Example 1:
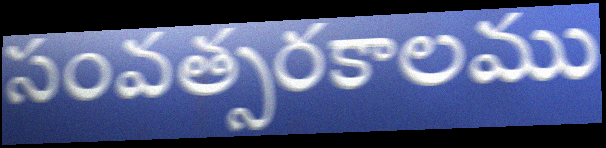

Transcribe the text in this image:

సంవత్సరకాలము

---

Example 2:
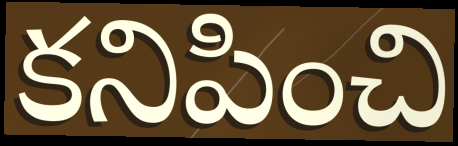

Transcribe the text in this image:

కనిపించి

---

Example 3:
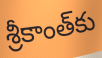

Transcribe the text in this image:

శ్రీకాంత్‌కు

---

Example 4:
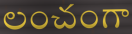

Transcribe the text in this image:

లంచంగా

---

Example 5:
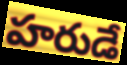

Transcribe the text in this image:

హరుడే